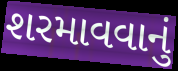
શરમાવવાનું